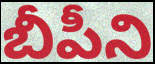
బీపీని